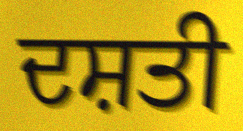
ਦਸ਼ਤੀ